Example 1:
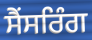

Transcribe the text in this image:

ਸੈਂਸਰਿੰਗ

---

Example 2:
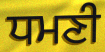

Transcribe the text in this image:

ਧਮਣੀ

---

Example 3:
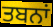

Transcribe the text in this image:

ਤਬਨਾਂ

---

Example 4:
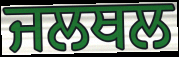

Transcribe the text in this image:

ਜਲਥਲ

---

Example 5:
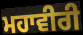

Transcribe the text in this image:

ਮਹਾਵੀਰੀ